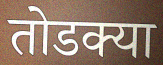
तोडक्या